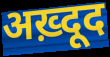
अख़्दूद